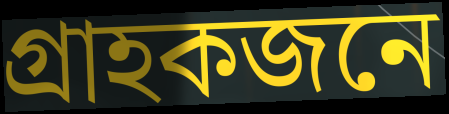
গ্ৰাহকজনে